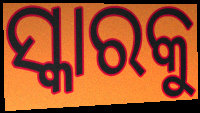
ସ୍କାରକୁ